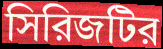
সিরিজটির